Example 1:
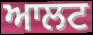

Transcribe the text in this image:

ਆਲਟ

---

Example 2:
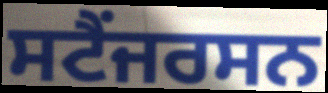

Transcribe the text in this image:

ਸਟੈਂਜਰਸਨ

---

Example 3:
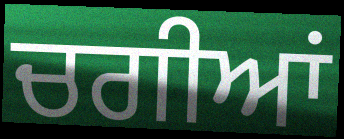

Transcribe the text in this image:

ਚਗੀਆਂ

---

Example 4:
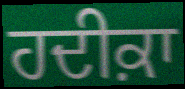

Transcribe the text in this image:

ਹਦੀਕ਼ਾ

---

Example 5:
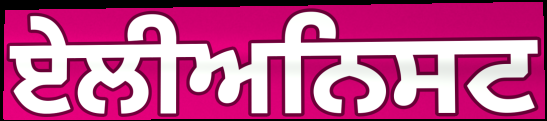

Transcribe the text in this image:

ਏਲੀਅਨਿਸਟ